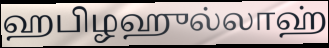
ஹபிழஹுல்லாஹ்